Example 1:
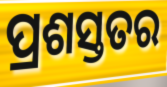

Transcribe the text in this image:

ପ୍ରଶସ୍ତତର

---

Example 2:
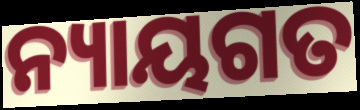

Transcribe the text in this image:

ନ୍ୟାୟଗତ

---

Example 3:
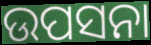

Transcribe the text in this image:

ଉପସନା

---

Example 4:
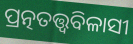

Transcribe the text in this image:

ପ୍ରତ୍ନତତ୍ତ୍ବବିଳାସୀ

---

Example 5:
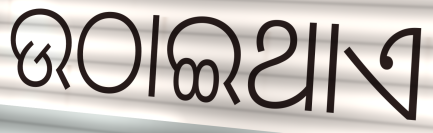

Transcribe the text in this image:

ଉଠାଇଥାଏ